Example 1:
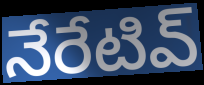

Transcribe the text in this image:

నేరేటివ్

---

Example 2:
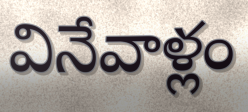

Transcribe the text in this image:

వినేవాళ్లం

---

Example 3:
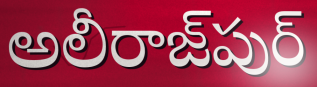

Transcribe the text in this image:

అలీరాజ్‌పుర్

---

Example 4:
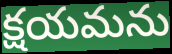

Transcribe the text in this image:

క్షయమను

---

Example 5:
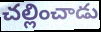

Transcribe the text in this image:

చల్లించాడు